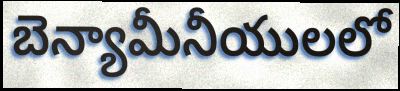
బెన్యామీనీయులలో